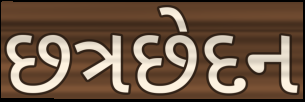
છત્રછેદન